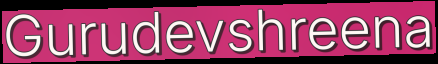
Gurudevshreena